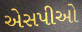
એસપીઓ